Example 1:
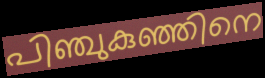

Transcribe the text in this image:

പിഞ്ചുകുഞ്ഞിനെ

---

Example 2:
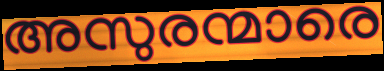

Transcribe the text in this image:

അസുരന്മാരെ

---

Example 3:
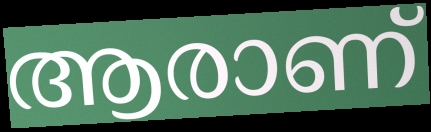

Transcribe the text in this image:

ആരാണ്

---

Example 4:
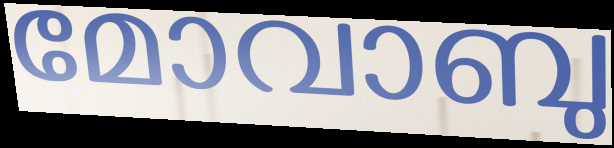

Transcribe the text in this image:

മോവാബു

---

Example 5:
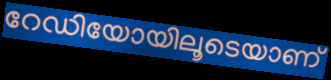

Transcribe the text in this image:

റേഡിയോയിലൂടെയാണ്